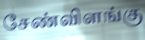
சேண்விளங்கு